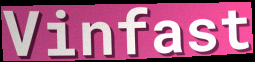
Vinfast